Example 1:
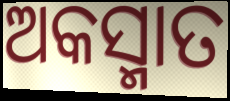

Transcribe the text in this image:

ଅକସ୍ମାତ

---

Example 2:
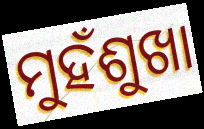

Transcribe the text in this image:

ମୁହଁଶୁଖା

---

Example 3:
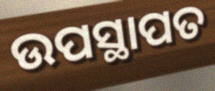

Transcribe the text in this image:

ଉପସ୍ଥାପତ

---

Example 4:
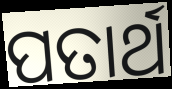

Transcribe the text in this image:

ପତାର୍ଥ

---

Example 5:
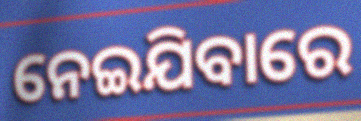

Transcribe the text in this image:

ନେଇଯିବାରେ